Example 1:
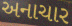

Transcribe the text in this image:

અનાચાર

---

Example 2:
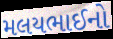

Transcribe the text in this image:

મલયભાઈનો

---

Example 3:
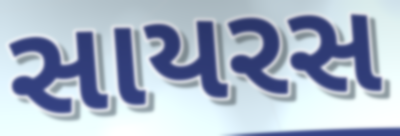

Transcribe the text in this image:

સાયરસ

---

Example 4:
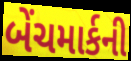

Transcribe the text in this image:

બેંચમાર્કની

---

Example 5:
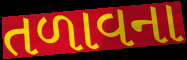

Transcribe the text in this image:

તળાવના